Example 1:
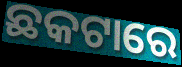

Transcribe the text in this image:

ଛକଟାରେ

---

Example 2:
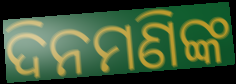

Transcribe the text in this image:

ଦିନମଣିଙ୍କ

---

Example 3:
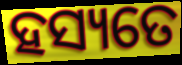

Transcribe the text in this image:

ହସ୍ୟତେ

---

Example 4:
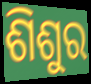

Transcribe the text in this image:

ଶିଶୁର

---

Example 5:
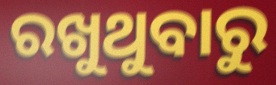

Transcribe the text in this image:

ରଖୁଥୁବାରୁ